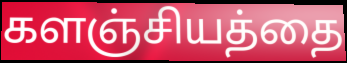
களஞ்சியத்தை